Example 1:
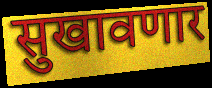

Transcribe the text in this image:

सुखावणार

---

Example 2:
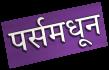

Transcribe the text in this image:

पर्समधून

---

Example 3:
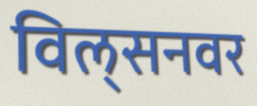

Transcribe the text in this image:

विल्सनवर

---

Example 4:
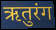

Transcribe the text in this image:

ऋतुरंग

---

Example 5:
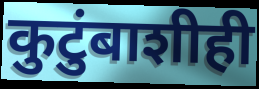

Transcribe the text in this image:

कुटुंबाशीही